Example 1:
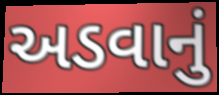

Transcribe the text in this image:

અડવાનું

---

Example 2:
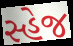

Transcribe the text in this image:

સ્હેજ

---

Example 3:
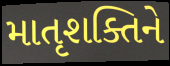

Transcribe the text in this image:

માતૃશક્તિને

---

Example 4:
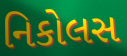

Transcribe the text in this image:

નિકોલસ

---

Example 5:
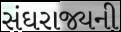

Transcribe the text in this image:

સંઘરાજ્યની